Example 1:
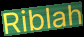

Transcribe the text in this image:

Riblah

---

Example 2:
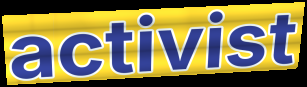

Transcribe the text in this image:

activist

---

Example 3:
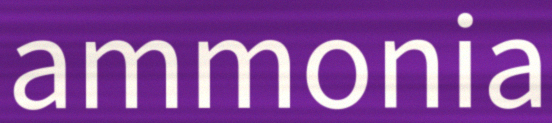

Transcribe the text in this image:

ammonia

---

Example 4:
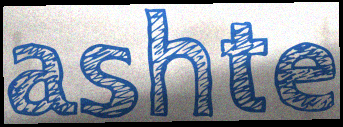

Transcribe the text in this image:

ashte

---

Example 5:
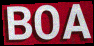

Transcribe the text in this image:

BOA